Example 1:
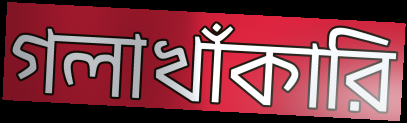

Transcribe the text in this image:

গলাখাঁকারি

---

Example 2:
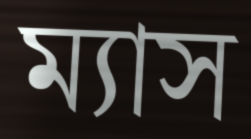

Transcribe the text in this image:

ম্যাস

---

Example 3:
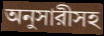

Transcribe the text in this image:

অনুসারীসহ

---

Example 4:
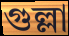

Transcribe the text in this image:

গুল্লা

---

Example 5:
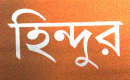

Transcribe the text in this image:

হিন্দুর